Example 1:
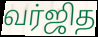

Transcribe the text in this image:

வர்ஜித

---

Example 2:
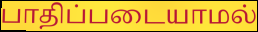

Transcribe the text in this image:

பாதிப்படையாமல்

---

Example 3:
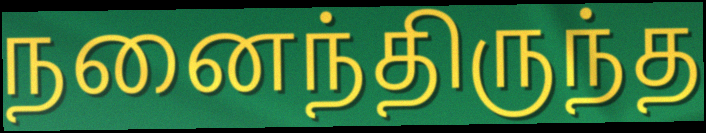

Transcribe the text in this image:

நனைந்திருந்த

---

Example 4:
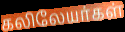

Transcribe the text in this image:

கலிலேயர்கள்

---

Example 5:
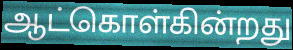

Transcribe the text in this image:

ஆட்கொள்கின்றது